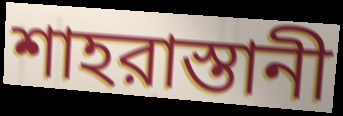
শাহরাস্তানী